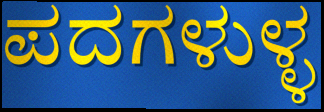
ಪದಗಳುಳ್ಳ